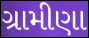
ગ્રામીણા